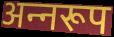
अन्नरूप